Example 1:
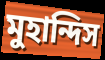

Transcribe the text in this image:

মুহান্দিস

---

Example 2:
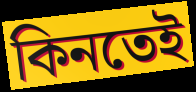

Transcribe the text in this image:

কিনতেই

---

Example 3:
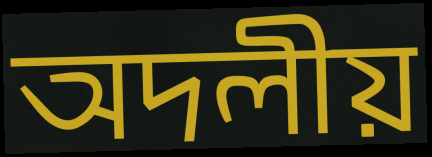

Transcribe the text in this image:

অদলীয়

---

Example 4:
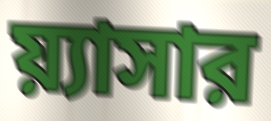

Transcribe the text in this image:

য়্যাসার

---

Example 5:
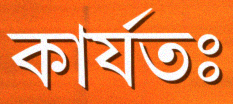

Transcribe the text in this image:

কার্যতঃ